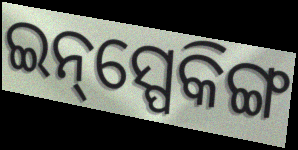
ଇନ୍‌ସ୍ପେକିଙ୍ଗ